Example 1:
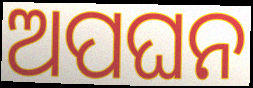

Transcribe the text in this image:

ଅପଘନ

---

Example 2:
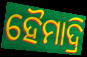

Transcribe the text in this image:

ହୈମାଦ୍ରି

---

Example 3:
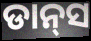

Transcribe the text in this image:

ଡାନ୍‍ସ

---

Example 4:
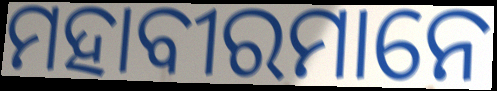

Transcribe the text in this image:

ମହାବୀରମାନେ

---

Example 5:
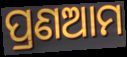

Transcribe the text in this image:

ପ୍ରଣଆମ